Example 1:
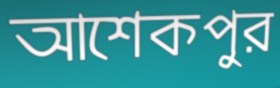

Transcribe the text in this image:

আশেকপুর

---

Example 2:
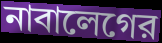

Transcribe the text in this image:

নাবালেগের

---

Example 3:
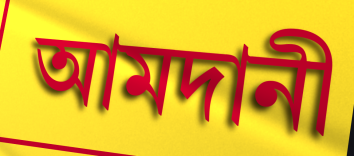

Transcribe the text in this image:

আমদানী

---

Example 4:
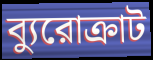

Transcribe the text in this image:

ব্যুরোক্রাট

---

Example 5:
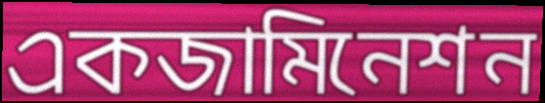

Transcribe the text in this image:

একজামিনেশন